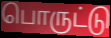
பொருட்டு